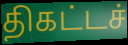
திகட்டச்